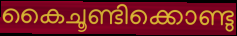
കൈചൂണ്ടിക്കൊണ്ടു